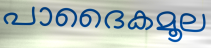
പാദൈകമൂല